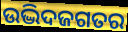
ଉଦ୍ଭିଦଜଗତର